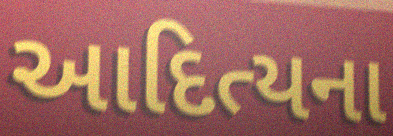
આદિત્યના